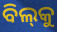
ବିଲ୍‌କୁ